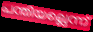
പന്തിയല്ലെന്ന്